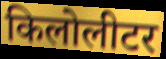
किलोलीटर